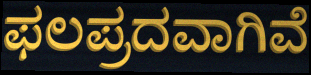
ಫಲಪ್ರದವಾಗಿವೆ